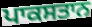
ਪਾਕਸਤਾਨ